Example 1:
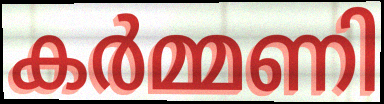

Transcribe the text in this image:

കർമ്മണി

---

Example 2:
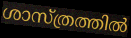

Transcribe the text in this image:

ശാസ്ത്രത്തിൽ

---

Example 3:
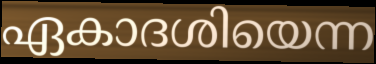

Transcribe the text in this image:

ഏകാദശിയെന്ന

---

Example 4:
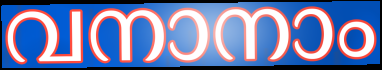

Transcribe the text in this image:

വനാനാം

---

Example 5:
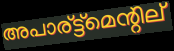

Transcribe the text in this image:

അപാര്ട്ട്മെന്റില്